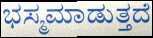
ಭಸ್ಮಮಾಡುತ್ತದೆ